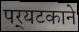
पर्यटकाने